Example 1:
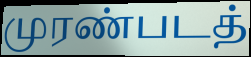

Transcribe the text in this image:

முரண்படத்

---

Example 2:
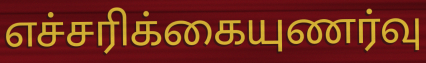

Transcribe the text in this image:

எச்சரிக்கையுணர்வு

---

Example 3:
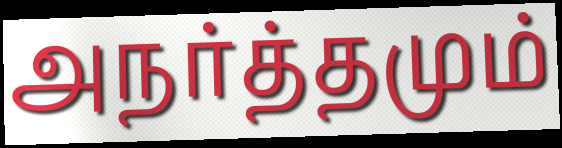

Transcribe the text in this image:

அநர்த்தமும்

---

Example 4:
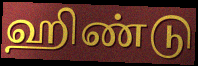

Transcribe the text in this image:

ஹிண்டு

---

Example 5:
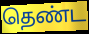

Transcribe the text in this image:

தெண்ட